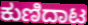
ಕುಣಿದಾಟ